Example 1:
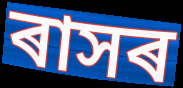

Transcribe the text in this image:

ৰাসৰ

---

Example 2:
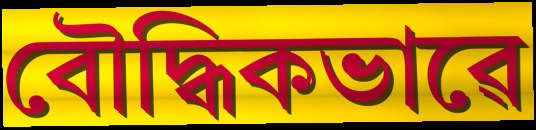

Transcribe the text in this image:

বৌদ্ধিকভাৱে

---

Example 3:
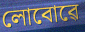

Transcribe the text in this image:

লোবোৱে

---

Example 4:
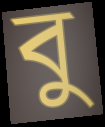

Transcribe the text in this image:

বু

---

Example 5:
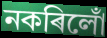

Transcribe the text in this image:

নকৰিলোঁ